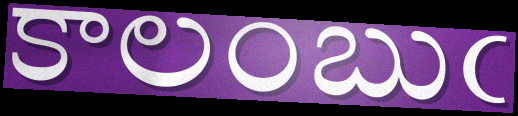
కాలంబుఁ